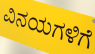
ವಿನಯಗಳಿಗೆ